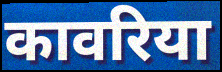
कावरिया